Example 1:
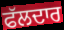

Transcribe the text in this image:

ਫੱਲਦਾਰ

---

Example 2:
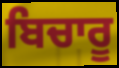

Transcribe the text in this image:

ਬਿਚਾਰੂ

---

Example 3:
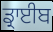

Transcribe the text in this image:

ਡ੍ਰਾਈਬ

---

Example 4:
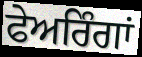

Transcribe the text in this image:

ਫੇਅਰਿੰਗਾਂ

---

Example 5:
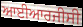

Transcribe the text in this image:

ਆਈਆਰਜੀਸੀ